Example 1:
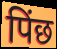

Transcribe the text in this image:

पिंछ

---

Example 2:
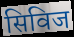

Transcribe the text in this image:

सिविज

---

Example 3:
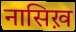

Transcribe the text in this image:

नासिख़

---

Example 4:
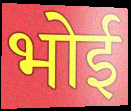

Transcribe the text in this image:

भोई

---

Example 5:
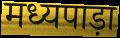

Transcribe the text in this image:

मध्यपाड़ा